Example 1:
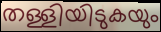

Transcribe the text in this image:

തള്ളിയിടുകയും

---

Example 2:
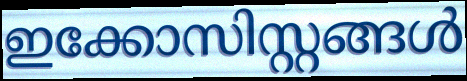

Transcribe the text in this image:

ഇക്കോസിസ്റ്റങ്ങൾ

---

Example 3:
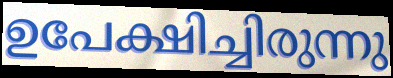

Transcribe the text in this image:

ഉപേക്ഷിച്ചിരുന്നു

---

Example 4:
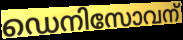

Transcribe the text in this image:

ഡെനിസോവന്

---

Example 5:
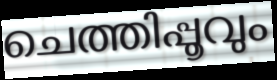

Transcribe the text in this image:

ചെത്തിപ്പൂവും